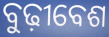
ବୁଢ଼ୀବେଶ